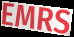
EMRS